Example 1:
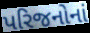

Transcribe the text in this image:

પરિજનોનાં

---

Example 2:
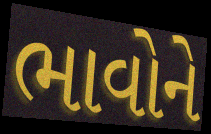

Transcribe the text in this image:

ભાવોને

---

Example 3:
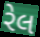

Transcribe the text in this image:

રેલ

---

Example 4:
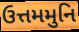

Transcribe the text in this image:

ઉત્તમમુનિ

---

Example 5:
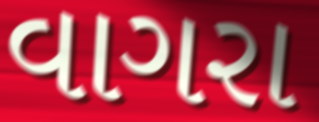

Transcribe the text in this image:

વાગરા